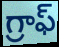
గ్రాఫ్